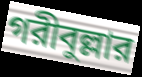
গরীবুল্লার